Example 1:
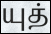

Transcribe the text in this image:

யுத்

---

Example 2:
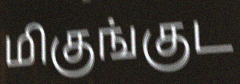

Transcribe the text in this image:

மிகுங்குட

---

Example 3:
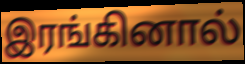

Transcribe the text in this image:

இரங்கினால்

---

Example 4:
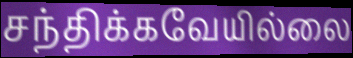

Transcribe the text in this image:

சந்திக்கவேயில்லை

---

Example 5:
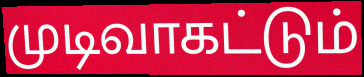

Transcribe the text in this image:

முடிவாகட்டும்